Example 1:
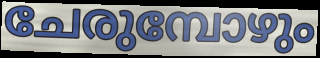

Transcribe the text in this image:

ചേരുമ്പോഴും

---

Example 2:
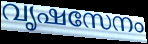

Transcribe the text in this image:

വൃഷസേനം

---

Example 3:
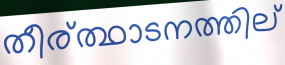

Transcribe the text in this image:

തീര്ത്ഥാടനത്തില്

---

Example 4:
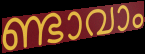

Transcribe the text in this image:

ണ്ടാവാം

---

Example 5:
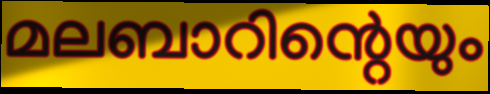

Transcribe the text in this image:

മലബാറിന്റെയും